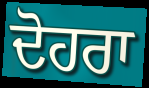
ਦੋਹਰਾ